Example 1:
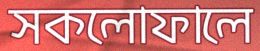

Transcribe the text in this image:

সকলোফালে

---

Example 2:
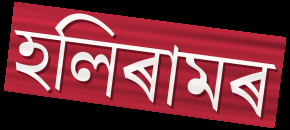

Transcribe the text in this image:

হলিৰামৰ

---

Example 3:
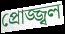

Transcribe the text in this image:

প্ৰোজ্জ্বল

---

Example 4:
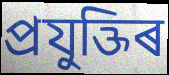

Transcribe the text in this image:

প্ৰযুক্তিৰ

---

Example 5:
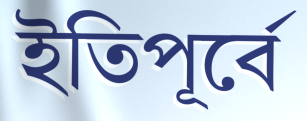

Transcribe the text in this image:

ইতিপূৰ্বে